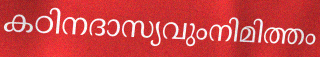
കഠിനദാസ്യവുംനിമിത്തം